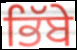
ਭਿੱਬੇ